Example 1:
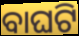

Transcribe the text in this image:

ବାଘଟି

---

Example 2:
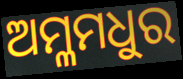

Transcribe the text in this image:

ଅମ୍ଳମଧୁର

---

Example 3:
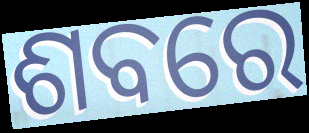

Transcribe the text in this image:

ଶବରେ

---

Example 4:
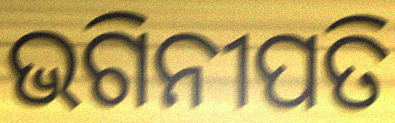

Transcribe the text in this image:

ଭଗିନୀପତି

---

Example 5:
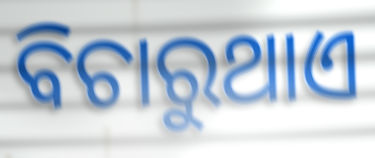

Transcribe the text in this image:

ବିଚାରୁଥାଏ